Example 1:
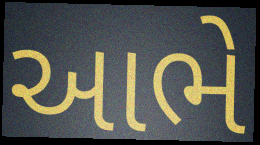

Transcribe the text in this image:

આભે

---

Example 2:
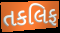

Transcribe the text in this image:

તકલિફ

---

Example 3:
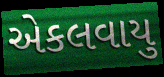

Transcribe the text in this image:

એકલવાયુ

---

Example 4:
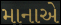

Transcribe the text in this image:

માનાએ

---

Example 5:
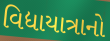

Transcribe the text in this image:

વિદ્યાયાત્રાનો